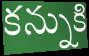
కన్నుకి